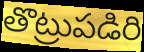
తొట్రుపడిరి